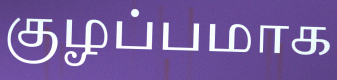
குழப்பமாக